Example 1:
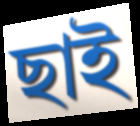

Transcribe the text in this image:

ছাই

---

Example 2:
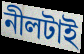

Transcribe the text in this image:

নীলটাই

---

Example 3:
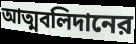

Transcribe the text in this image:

আত্মবলিদানের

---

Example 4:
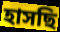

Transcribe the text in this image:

হাসছি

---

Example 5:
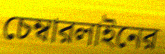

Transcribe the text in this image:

চেম্বারলাইনের